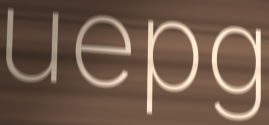
uepg